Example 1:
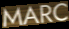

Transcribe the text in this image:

MARC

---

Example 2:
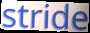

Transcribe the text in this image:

stride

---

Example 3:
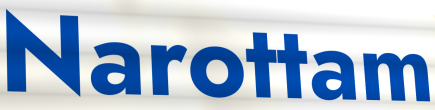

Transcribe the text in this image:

Narottam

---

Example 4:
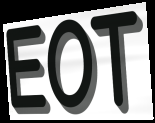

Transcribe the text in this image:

EOT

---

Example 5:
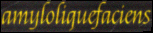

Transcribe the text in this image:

amyloliquefaciens